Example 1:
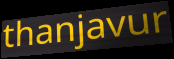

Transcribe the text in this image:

thanjavur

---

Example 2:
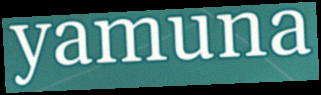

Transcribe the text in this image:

yamuna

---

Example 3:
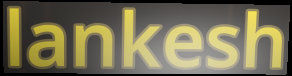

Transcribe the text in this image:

lankesh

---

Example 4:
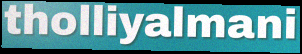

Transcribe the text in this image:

tholliyalmani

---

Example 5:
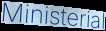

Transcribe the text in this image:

Ministerial